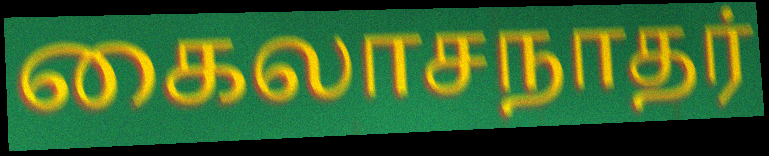
கைலாசநாதர்